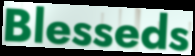
Blesseds